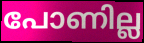
പോണില്ല